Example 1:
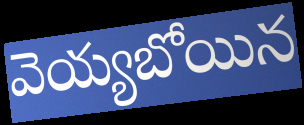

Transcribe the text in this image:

వెయ్యబోయిన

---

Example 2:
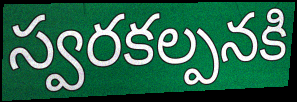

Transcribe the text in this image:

స్వరకల్పనకి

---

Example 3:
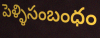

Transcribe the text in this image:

పెళ్ళిసంబంధం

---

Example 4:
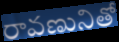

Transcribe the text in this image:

రావణునితో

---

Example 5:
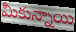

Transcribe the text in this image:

మీకున్నాయి